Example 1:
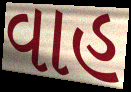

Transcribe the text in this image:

વાહ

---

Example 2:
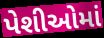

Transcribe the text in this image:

પેશીઓમાં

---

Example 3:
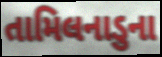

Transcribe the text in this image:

તામિલનાડુના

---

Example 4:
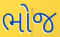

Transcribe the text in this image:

ભોજ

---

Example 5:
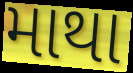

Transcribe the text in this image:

માથા